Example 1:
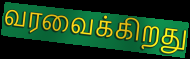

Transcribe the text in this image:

வரவைக்கிறது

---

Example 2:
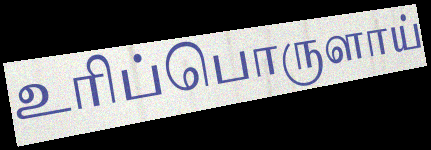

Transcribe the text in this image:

உரிப்பொருளாய்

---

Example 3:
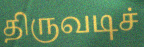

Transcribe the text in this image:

திருவடிச்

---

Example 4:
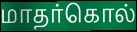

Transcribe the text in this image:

மாதர்கொல்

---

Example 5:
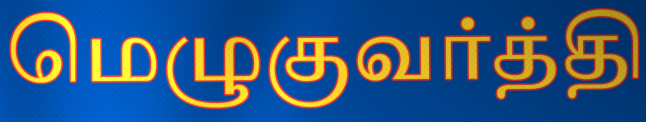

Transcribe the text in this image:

மெழுகுவர்த்தி